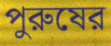
পুরুষের